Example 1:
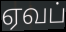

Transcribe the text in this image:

ஏவப்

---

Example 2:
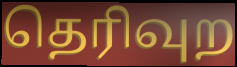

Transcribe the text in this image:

தெரிவுற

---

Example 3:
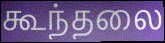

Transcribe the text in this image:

கூந்தலை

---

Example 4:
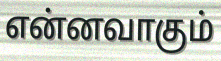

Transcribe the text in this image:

என்னவாகும்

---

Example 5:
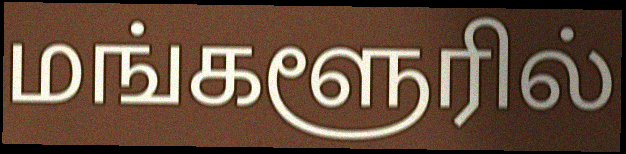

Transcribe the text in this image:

மங்களூரில்